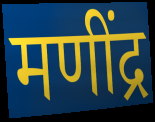
मणींद्र